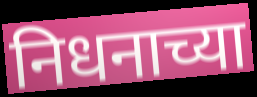
निधनाच्या